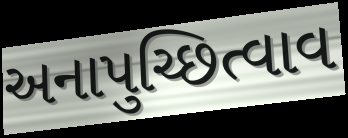
અનાપુચ્છિત્વાવ